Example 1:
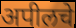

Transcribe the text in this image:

अपीलचे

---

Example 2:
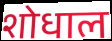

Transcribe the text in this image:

शोधाल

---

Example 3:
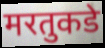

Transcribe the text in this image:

मरतुकडे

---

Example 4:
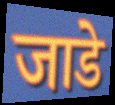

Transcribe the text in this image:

जाडे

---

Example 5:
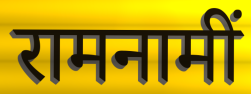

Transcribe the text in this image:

रामनामीं